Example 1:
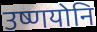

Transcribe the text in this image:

उष्णयोनि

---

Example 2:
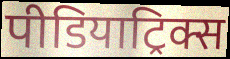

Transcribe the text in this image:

पीडियाट्रिक्स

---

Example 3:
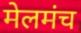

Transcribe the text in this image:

मेलमंच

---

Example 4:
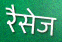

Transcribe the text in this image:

रैसेज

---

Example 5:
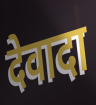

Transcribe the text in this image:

देवादा